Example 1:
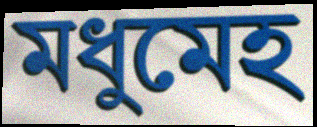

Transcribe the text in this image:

মধুমেহ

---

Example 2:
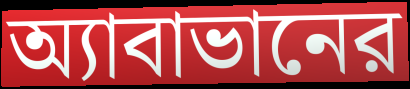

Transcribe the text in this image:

অ্যাবাভানের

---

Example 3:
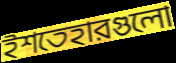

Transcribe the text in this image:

ইশতেহারগুলো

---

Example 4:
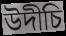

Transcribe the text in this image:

উদীচি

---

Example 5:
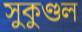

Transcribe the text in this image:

সুকুণ্ডল